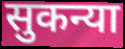
सुकन्या